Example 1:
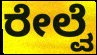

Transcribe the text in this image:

ರೇಲ್ವೆ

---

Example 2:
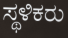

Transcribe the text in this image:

ಸ್ಥಳಿಕರು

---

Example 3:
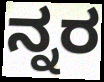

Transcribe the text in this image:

ನ್ನರ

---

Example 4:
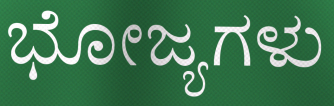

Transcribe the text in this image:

ಭೋಜ್ಯಗಳು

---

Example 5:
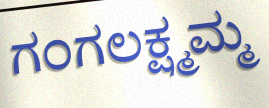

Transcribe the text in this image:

ಗಂಗಲಕ್ಷ್ಮಮ್ಮ